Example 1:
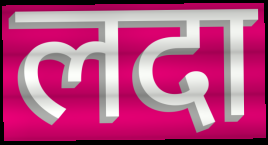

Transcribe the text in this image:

लदा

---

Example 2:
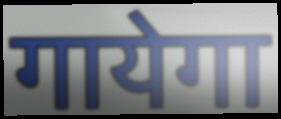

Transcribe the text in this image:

गायेगा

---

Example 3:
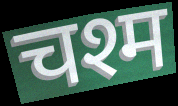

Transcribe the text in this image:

चश्म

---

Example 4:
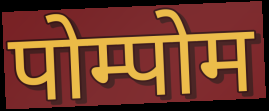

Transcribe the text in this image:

पोम्पोम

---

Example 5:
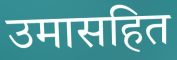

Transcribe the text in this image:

उमासहित